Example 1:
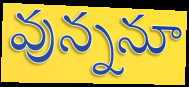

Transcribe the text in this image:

వున్ననూ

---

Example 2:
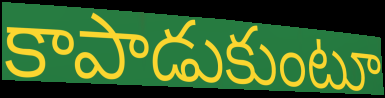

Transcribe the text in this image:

కాపాడుకుంటూ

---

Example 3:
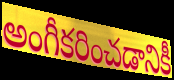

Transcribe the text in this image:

అంగీకరించడానికీ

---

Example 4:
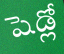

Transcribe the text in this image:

షెడ్లో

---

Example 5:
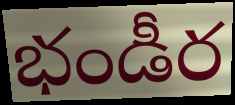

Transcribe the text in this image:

భండీర